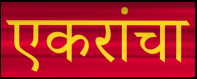
एकरांचा